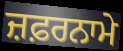
ਜ਼ਫ਼ਰਨਾਮੇ